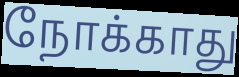
நோக்காது